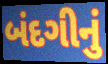
બંદગીનું